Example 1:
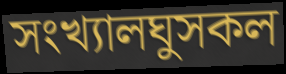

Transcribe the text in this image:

সংখ্যালঘুসকল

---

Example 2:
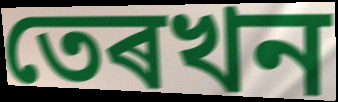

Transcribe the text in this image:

তেৰখন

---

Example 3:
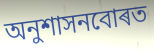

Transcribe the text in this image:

অনুশাসনবোৰত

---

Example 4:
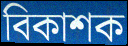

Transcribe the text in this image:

বিকাশক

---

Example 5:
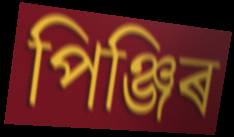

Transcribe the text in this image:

পিঞ্জিৰ